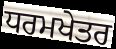
ਧਰਮਖੇਤਰ